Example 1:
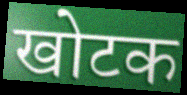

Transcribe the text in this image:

खोटक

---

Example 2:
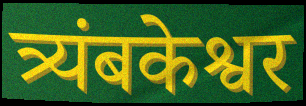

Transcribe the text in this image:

त्र्यंबकेश्वर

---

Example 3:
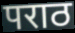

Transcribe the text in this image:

पराठ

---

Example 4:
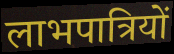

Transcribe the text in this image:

लाभपात्रियों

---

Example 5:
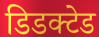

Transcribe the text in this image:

डिडक्टेड